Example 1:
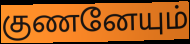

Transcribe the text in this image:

குணனேயும்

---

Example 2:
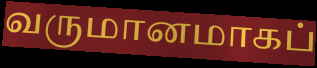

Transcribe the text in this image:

வருமானமாகப்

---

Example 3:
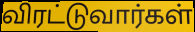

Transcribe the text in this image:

விரட்டுவார்கள்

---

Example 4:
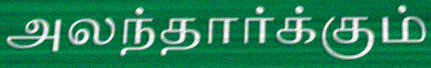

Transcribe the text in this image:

அலந்தார்க்கும்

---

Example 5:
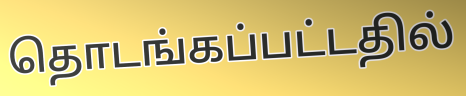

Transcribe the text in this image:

தொடங்கப்பட்டதில்